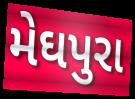
મેઘપુરા